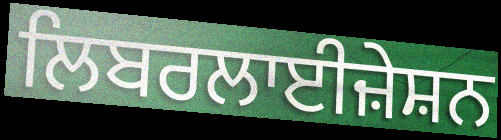
ਲਿਬਰਲਾਈਜ਼ੇਸ਼ਨ